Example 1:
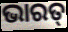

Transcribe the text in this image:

ଭାରତ୍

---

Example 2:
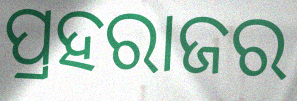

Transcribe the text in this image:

ପ୍ରହରାଜର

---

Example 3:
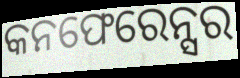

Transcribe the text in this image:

କନଫେରେନ୍ସର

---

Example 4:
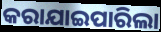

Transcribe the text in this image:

କରାଯାଇପାରିଲା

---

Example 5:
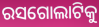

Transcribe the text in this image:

ରସଗୋଲାଟିକୁ